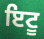
ਇਟੂ